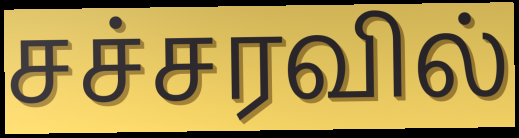
சச்சரவில்